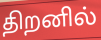
திறனில்